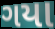
ગયા